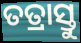
ତତ୍ରାସ୍ତୁ